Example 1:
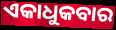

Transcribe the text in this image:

ଏକାଧୁକବାର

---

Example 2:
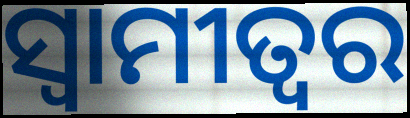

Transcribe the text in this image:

ସ୍ଵାମୀତ୍ୱର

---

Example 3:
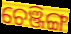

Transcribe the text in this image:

ଚେଞ୍ଜିଙ୍ଗ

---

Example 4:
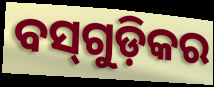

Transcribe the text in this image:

ବସ୍‌ଗୁଡ଼ିକର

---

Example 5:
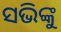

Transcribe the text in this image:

ସଭିଙ୍କୁ